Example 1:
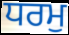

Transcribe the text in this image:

ਧਰਮੁ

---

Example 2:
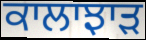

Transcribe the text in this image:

ਕਾਲਾਝਾਡ਼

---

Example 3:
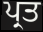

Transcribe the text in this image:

ਪ੍ਰਤ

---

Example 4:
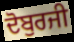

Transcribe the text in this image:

ਦੋਬੁਰਜੀ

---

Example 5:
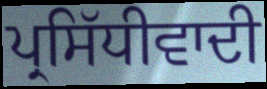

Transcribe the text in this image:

ਪ੍ਰਸਿੱਧੀਵਾਦੀ